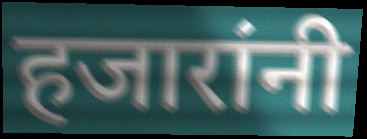
हजारांनी